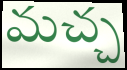
మచ్చ